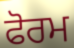
ਫੋਰਮ